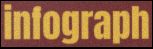
infograph